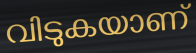
വിടുകയാണ്